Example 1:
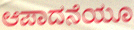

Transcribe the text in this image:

ಆಪಾದನೆಯೂ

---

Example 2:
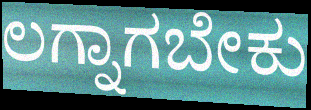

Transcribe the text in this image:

ಲಗ್ನಾಗಬೇಕು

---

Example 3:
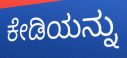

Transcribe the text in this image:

ಕೇಡಿಯನ್ನು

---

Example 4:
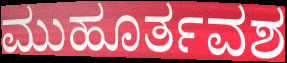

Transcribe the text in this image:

ಮುಹೂರ್ತವಶ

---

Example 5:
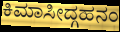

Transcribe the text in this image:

ಕಿಮಾಸೀದ್ಗಹನಂ